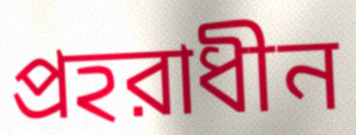
প্রহরাধীন